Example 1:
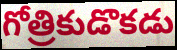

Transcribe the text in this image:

గోత్రికుడొకడు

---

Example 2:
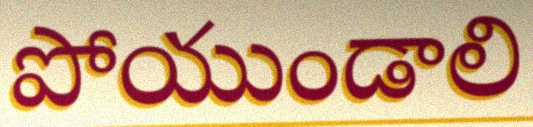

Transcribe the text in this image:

పోయుండాలి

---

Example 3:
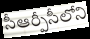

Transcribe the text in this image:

సీఆర్పీసీలోని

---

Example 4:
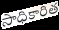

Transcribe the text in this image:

సాధికారిత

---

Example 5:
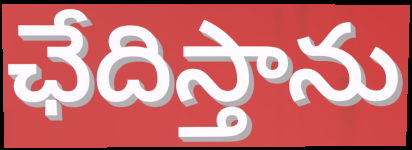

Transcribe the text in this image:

ఛేదిస్తాను